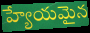
హ్యేయమైన